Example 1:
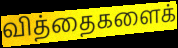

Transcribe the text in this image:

வித்தைகளைக்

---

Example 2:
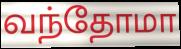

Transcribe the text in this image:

வந்தோமா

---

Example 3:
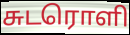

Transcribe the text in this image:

சுடரொளி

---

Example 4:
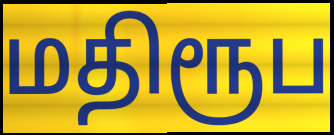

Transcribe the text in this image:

மதிரூப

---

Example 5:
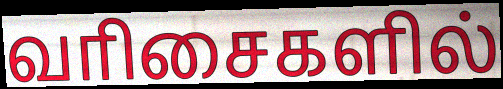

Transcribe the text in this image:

வரிசைகளில்